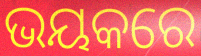
ଭୟକରେ